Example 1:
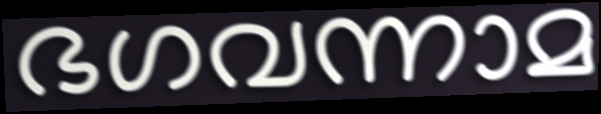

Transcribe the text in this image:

ഭഗവന്നാമ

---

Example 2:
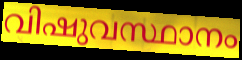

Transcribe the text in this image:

വിഷുവസ്ഥാനം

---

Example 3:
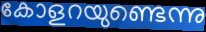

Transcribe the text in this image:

കോളറയുണ്ടെന്നു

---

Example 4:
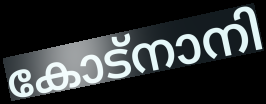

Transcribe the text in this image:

കോട്നാനി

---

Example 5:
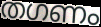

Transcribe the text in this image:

തഗണം